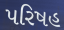
પરિષહ